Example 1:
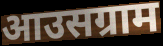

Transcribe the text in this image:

आउसग्राम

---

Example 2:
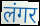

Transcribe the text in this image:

लंगर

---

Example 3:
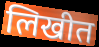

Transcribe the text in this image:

लिखीत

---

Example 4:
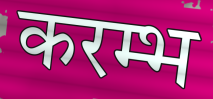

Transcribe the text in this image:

करम्भ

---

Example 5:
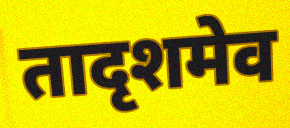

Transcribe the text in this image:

तादृशमेव